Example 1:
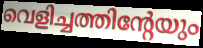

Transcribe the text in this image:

വെളിച്ചത്തിന്റേയും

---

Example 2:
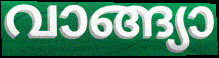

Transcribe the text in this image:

വാങ്ങ്യാ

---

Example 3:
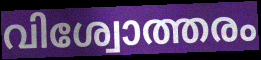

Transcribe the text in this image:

വിശ്വോത്തരം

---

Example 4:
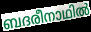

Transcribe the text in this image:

ബദരീനാഥിൽ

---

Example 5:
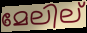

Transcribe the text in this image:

മേലില്